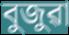
বুজুৱা